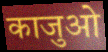
काजुओ